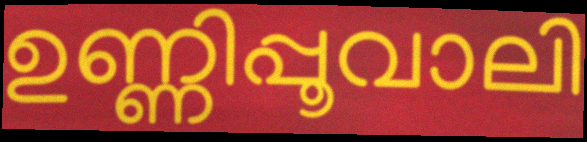
ഉണ്ണിപ്പൂവാലി